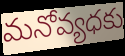
మనోవ్యధకు